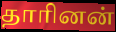
தாரினன்